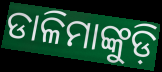
ଡାଳିମାଙ୍କୁଡ଼ି